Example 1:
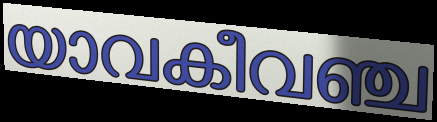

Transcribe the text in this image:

യാവകീവഞ്ച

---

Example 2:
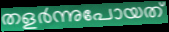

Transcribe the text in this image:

തളർന്നുപോയത്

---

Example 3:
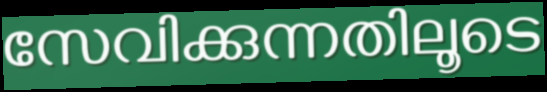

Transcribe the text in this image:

സേവിക്കുന്നതിലൂടെ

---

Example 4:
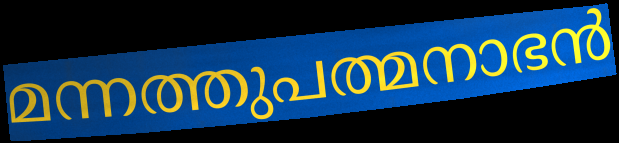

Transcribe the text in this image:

മന്നത്തുപത്മനാഭൻ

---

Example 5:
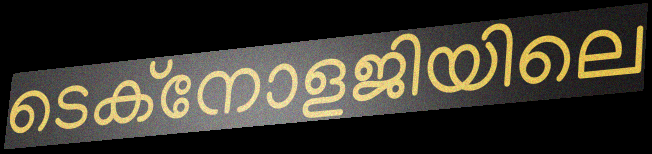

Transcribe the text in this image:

ടെക്നോളജിയിലെ